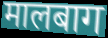
मालबाग